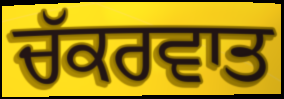
ਚੱਕਰਵਾਤ